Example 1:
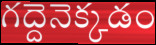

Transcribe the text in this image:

గద్దెనెక్కడం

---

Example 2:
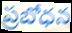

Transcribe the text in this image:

ప్రబోధన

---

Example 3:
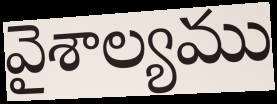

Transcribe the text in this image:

వైశాల్యము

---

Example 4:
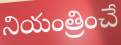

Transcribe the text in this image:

నియంత్రించే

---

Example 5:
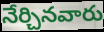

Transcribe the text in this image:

నేర్చినవారు